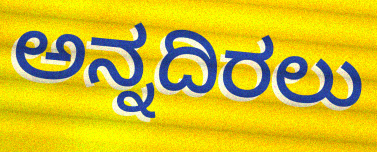
ಅನ್ನದಿರಲು